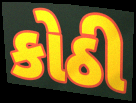
કોઠી